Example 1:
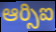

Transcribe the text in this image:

ఆర్సిఐ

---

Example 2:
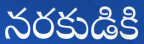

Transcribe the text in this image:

నరకుడికి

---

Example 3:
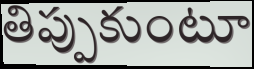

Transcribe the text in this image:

తిప్పుకుంటూ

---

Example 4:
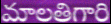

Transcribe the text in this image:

మాలతిగారి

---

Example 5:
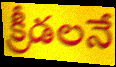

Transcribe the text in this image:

క్రీడలనే